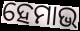
ହେମାଭ